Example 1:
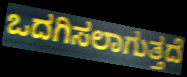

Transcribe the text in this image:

ಒದಗಿಸಲಾಗುತ್ತದೆ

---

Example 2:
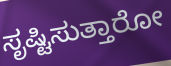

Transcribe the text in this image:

ಸೃಷ್ಟಿಸುತ್ತಾರೋ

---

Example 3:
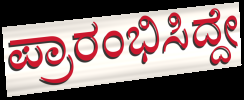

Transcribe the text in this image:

ಪ್ರಾರಂಭಿಸಿದ್ದೇ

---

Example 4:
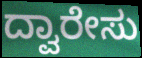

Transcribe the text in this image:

ದ್ವಾರೇಸು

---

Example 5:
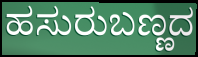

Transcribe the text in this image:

ಹಸುರುಬಣ್ಣದ